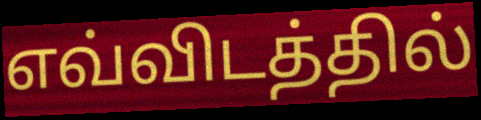
எவ்விடத்தில்